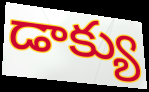
డాక్యు